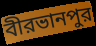
বীরভানপুর